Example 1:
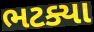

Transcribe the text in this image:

ભટક્યા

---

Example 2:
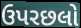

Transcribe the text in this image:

ઉપરછલો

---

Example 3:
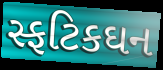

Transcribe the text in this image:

સ્ફટિકઘન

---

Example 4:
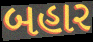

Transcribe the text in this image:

બહાર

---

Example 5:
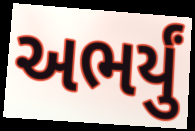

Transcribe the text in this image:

અભર્યું